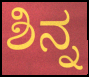
ಶಿನ್ನ